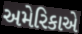
અમેરિકાએ